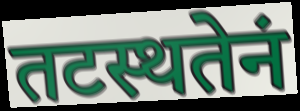
तटस्थतेनं